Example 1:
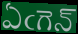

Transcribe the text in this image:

ఏఁగెన్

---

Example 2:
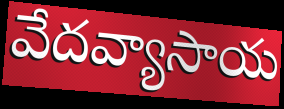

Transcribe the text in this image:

వేదవ్యాసాయ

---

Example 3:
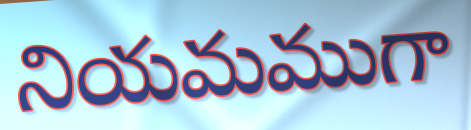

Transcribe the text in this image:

నియమముగా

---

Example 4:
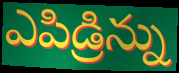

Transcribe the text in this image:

ఎపిడ్రిన్ను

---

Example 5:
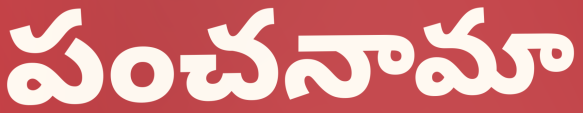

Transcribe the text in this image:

పంచనామా